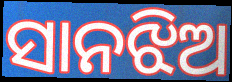
ସାନଝିଅ